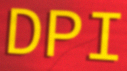
DPI